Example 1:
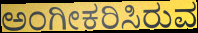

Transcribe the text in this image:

ಅಂಗೀಕರಿಸಿರುವ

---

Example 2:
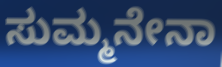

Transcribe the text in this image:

ಸುಮ್ಮನೇನಾ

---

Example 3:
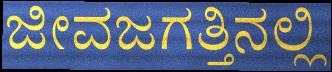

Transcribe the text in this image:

ಜೀವಜಗತ್ತಿನಲ್ಲಿ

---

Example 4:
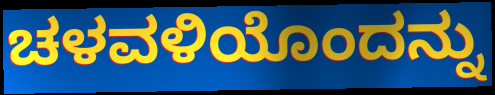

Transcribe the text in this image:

ಚಳವಳಿಯೊಂದನ್ನು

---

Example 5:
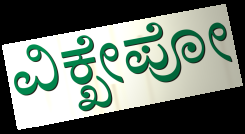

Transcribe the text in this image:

ವಿಕ್ಖೇಪೋ